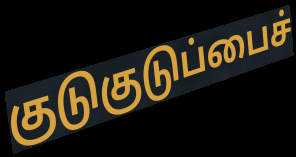
குடுகுடுப்பைச்